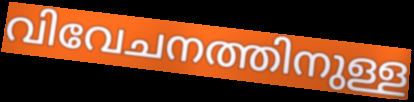
വിവേചനത്തിനുള്ള